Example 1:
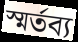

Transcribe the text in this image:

স্মর্তব্য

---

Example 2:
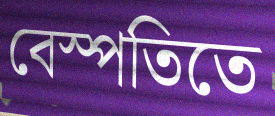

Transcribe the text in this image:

বেস্পতিতে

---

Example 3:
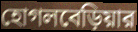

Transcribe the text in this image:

হোগলবেড়িয়ার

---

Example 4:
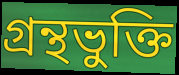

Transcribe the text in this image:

গ্রন্থভুক্তি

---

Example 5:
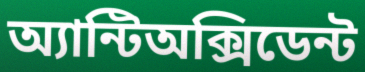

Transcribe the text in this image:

অ্যান্টিঅক্সিডেন্ট